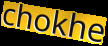
chokhe